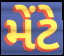
મેંટે